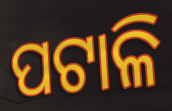
ପଟାଳି